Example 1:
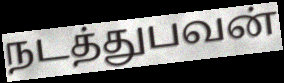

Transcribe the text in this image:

நடத்துபவன்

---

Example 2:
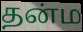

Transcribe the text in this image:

தன்ம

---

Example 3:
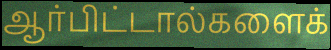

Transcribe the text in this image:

ஆர்பிட்டால்களைக்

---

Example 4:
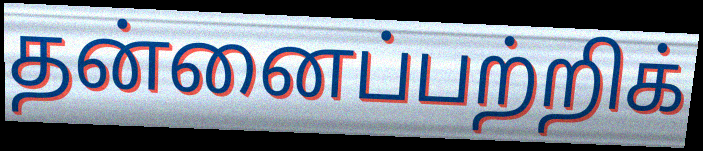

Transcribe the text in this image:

தன்னைப்பற்றிக்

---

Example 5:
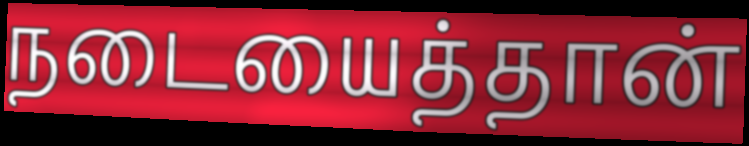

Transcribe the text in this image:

நடையைத்தான்